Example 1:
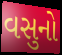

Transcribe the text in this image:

વસુનો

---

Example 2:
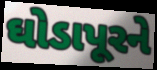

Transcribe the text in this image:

ઘોડાપૂરને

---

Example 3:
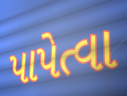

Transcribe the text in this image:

પાપેત્વા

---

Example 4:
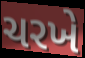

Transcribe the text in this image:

ચરખે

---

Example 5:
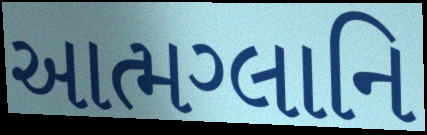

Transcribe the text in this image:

આત્મગ્લાનિ